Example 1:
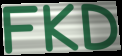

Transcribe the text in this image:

FKD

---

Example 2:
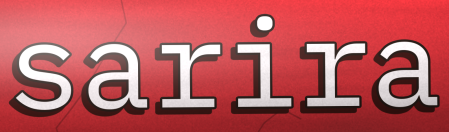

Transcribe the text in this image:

sarira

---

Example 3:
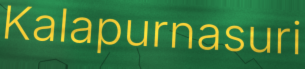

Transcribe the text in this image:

Kalapurnasuri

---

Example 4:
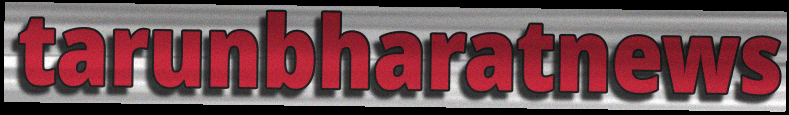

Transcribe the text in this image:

tarunbharatnews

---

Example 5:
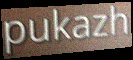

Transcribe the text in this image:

pukazh